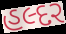
હલ્દર